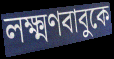
লক্ষ্মণবাবুকে